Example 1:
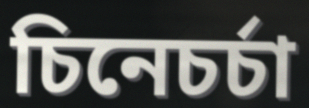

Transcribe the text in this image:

চিনেচৰ্চা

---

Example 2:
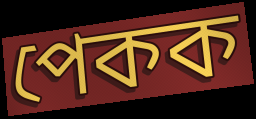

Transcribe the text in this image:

পেকক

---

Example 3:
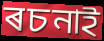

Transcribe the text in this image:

ৰচনাই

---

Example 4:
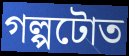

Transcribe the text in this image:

গল্পটোত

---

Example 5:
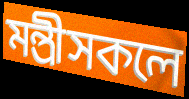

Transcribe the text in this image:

মন্ত্ৰীসকলে